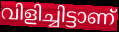
വിളിച്ചിട്ടാണ്